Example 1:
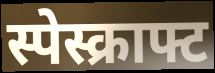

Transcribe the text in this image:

स्पेस्क्राफ्ट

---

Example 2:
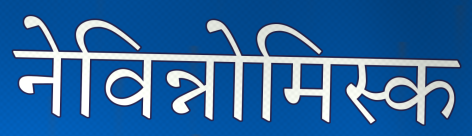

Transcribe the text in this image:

नेविन्नोमिस्क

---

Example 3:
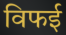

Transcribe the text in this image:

विफई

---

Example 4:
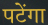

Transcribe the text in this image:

पटेंगा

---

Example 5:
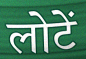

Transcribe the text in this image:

लोटें